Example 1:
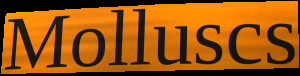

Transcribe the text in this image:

Molluscs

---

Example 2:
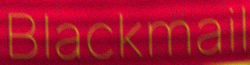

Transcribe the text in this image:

Blackmail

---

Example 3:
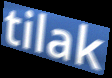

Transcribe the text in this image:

tilak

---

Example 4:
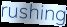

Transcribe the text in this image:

rushing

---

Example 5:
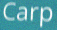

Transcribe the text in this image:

Carp